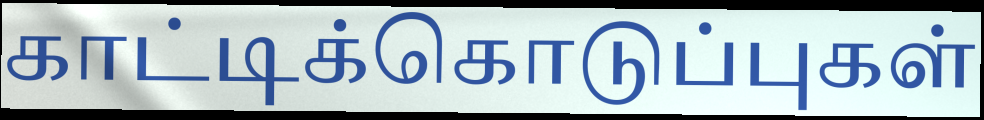
காட்டிக்கொடுப்புகள்